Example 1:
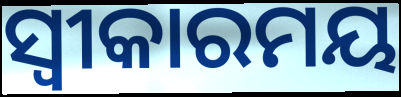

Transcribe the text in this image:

ସ୍ଵୀକାରମୟ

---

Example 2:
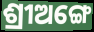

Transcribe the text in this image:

ଶ୍ରୀଅଙ୍ଗେ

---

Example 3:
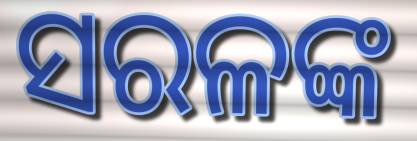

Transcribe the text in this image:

ସରଳଙ୍କ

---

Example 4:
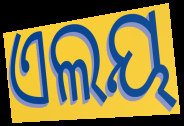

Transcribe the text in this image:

ଏଲୟ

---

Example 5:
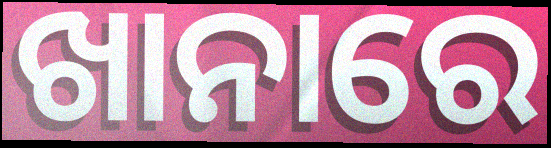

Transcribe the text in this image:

ଖାନାରେ